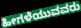
ಹೀಗಳೆಯುವವರು